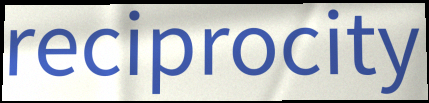
reciprocity